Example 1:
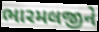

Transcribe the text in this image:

ભારમલજીને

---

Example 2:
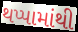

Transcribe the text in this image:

થપ્પામાંથી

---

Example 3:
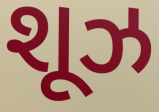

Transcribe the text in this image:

શૂઝ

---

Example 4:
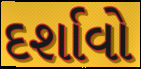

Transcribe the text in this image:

દર્શાવો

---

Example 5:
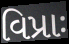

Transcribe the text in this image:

વિપ્રાઃ